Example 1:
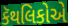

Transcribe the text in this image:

કૅથલિકોએ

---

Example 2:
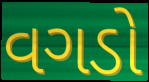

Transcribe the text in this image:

વગડો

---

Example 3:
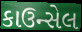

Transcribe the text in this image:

કાઉન્સેલ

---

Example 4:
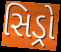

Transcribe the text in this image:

સિડ્રો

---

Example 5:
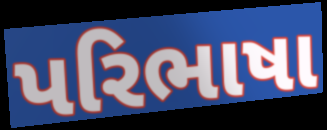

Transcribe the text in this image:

પરિભાષા